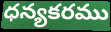
ధన్యకరము